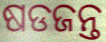
ଷଡଜନ୍ତ